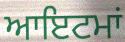
ਆਇਟਮਾਂ